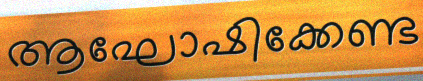
ആഘോഷിക്കേണ്ട